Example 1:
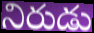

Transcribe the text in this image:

నిరుడు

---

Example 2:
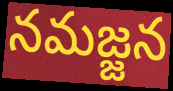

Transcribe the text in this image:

నమజ్జన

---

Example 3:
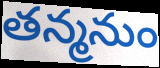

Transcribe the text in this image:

తన్మనుం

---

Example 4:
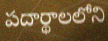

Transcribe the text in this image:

పదార్థాలలోని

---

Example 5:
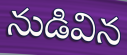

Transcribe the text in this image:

నుడివిన